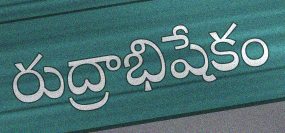
రుద్రాభిషేకం